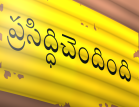
ప్రసిద్ధిచెందింది